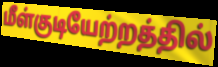
மீள்குடியேற்றத்தில்